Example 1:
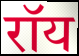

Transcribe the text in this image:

रॉय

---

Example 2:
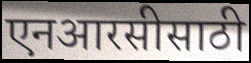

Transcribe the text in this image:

एनआरसीसाठी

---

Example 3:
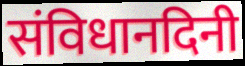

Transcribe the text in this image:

संविधानदिनी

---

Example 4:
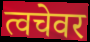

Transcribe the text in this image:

त्वचेवर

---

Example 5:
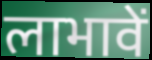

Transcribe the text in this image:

लाभावें